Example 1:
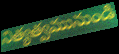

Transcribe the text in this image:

నిత్యత్వమునుండి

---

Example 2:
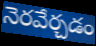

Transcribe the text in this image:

నెరవేర్చడం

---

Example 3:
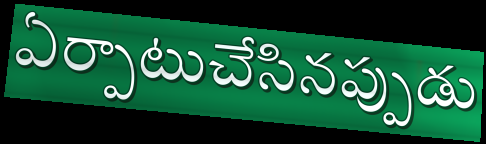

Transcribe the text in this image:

ఏర్పాటుచేసినప్పుడు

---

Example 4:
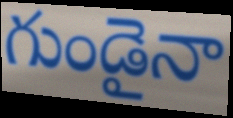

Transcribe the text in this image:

గుండైనా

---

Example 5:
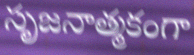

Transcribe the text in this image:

సృజనాత్మకంగా